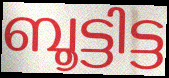
ബൂട്ടിട്ട